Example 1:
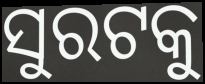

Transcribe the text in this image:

ସୁରଟକୁ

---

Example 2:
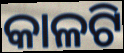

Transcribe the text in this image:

କାଳଟି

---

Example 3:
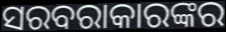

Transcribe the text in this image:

ସରବରାକାରଙ୍କର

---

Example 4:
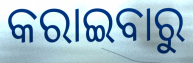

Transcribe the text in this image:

କରାଇବାରୁ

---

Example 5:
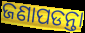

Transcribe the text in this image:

ଜଣାପଡନ୍ତା